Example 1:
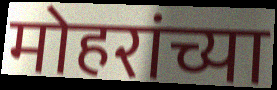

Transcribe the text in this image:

मोहरांच्या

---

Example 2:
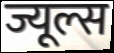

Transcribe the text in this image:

ज्यूल्स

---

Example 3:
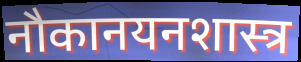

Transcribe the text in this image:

नौकानयनशास्त्र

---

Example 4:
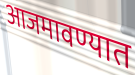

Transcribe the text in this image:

आजमावण्यात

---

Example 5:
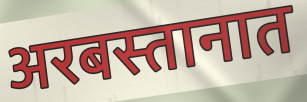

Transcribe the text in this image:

अरबस्तानात